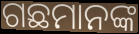
ଗଛମାନଙ୍କ